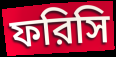
ফরিসি